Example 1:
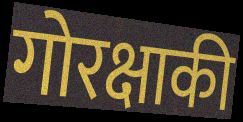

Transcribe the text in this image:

गोरक्षाकी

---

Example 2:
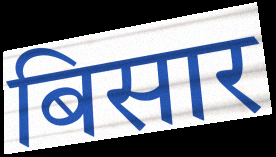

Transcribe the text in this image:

बिसार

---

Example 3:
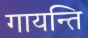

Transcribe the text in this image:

गायन्ति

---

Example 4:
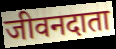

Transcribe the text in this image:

जीवनदाता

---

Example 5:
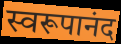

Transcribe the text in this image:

स्‍वरूपानंद